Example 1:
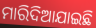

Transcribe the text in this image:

ମାରିଦିଆଯାଇଛି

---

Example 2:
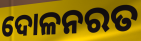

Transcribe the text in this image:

ଦୋଳନରତ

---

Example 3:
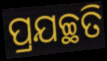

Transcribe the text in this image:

ପ୍ରଯଚ୍ଛତି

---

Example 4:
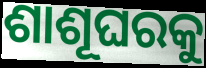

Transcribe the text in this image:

ଶାଶୂଘରକୁ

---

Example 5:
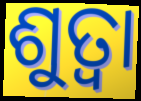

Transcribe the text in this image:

ଶୁତ୍ବା